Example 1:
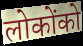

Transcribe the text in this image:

लोकोंको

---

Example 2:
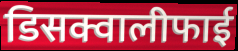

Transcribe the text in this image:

डिसक्वालीफाई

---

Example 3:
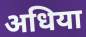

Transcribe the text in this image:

अधिया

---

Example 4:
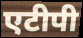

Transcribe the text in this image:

एटीपी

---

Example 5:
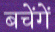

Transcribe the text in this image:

बचेंगें